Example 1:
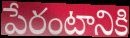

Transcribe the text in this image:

పేరంటానికి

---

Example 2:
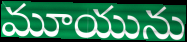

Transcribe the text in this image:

మూయును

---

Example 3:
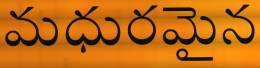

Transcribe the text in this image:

మధురమైన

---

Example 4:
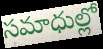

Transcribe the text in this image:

సమాధుల్లో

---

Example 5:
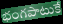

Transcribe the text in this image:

భంగపాటుకే